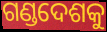
ଗଣ୍ଡଦେଶକୁ